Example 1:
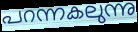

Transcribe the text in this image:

പറന്നകലുന്നു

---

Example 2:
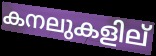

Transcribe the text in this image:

കനലുകളില്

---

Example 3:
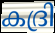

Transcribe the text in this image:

കദ്രി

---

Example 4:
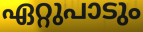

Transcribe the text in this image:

ഏറ്റുപാടും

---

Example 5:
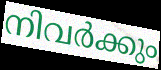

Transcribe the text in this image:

നിവർക്കും